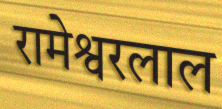
रामेश्वरलाल